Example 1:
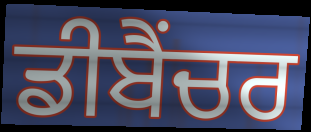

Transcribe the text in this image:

ਡੀਬੈਂਚਰ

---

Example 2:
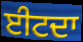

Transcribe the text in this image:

ਈਟਦਾ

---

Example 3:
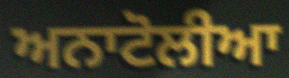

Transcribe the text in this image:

ਅਨਾਟੋਲੀਆ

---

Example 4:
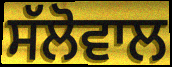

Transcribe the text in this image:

ਸੱਲੋਵਾਲ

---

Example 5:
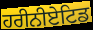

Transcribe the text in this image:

ਹਰੀਨੀਏਟਿਡ